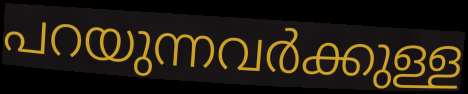
പറയുന്നവർക്കുള്ള